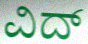
ವಿದ್